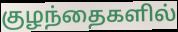
குழந்தைகளில்